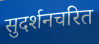
सुदर्शनचरित